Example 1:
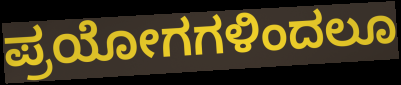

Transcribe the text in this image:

ಪ್ರಯೋಗಗಳಿಂದಲೂ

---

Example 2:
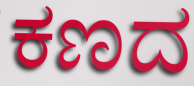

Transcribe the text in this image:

ಕಣದ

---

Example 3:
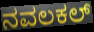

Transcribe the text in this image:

ನವಲಕಲ್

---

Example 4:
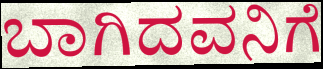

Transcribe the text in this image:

ಬಾಗಿದವನಿಗೆ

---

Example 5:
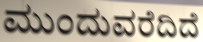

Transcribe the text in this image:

ಮುಂದುವರೆದಿದೆ